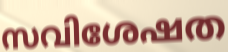
സവിശേഷത